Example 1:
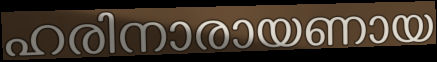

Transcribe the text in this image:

ഹരിനാരായണായ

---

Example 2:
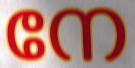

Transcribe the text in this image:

നേ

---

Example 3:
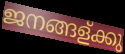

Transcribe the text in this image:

ജനങ്ങള്ക്കു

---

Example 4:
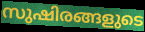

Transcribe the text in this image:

സുഷിരങ്ങളുടെ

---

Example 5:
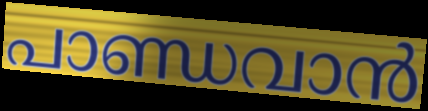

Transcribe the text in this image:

പാണ്ഡവാൻ